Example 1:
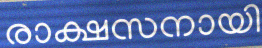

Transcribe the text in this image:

രാക്ഷസനായി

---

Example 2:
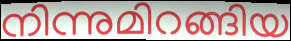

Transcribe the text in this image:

നിന്നുമിറങ്ങിയ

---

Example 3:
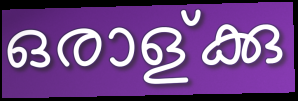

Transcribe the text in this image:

ഒരാള്ക്കു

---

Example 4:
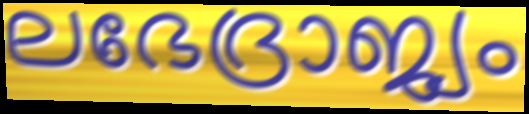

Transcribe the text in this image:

ലഭേദ്രാജ്യം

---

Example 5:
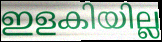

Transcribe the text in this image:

ഇളകിയില്ല